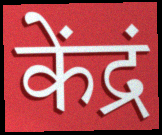
केंद्रं